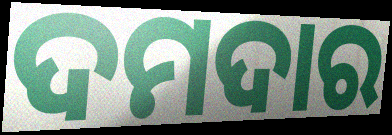
ଦମଦାର